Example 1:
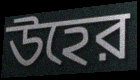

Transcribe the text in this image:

উহের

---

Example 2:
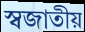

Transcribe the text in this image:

স্বজাতীয়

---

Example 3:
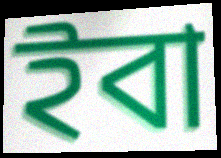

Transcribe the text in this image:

ইবা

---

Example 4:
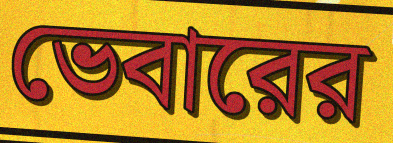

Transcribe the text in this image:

ভেবারের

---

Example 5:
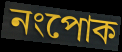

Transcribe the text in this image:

নংপোক